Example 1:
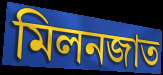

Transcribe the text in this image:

মিলনজাত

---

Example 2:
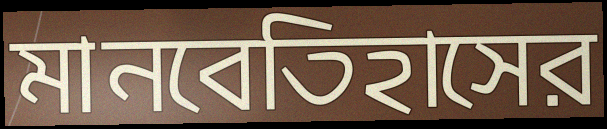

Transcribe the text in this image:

মানবেতিহাসের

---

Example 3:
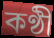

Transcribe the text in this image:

কণ্ঠী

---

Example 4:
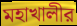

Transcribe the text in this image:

মহাখালীর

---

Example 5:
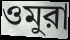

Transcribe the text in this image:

ওমুরা